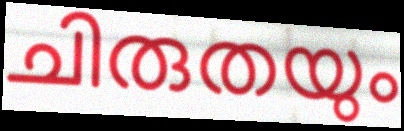
ചിരുതയും